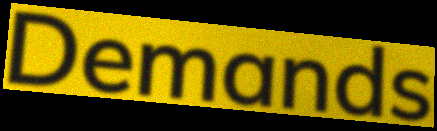
Demands